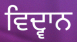
ਵਿਦ੍ਵਾਨ